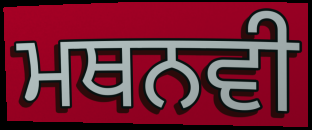
ਮਥਨਵੀ